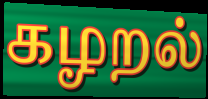
கழறல்